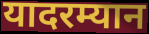
यादरम्यान